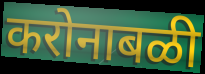
करोनाबळी